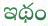
ఇథం